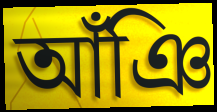
আঁঞি